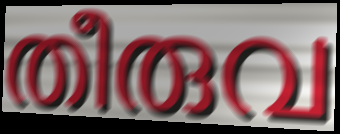
തീരുവ